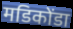
मडिकोंडा